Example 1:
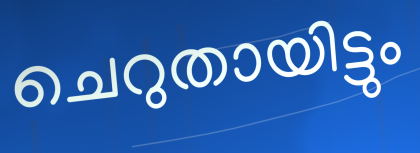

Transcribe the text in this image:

ചെറുതായിട്ടും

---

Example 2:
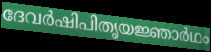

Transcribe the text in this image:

ദേവർഷിപിതൃയജ്ഞാർഥം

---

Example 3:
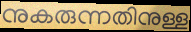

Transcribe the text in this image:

നുകരുന്നതിനുള്ള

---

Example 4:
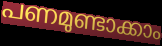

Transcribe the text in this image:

പണമുണ്ടാക്കാം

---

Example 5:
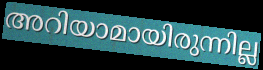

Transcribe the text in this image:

അറിയാമായിരുന്നില്ല